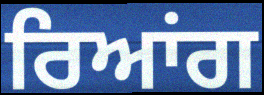
ਰਿਆਂਗ